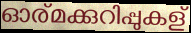
ഓര്മക്കുറിപ്പുകള്